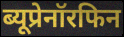
ब्यूप्रेनॉरफिन